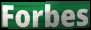
Forbes